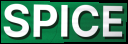
SPICE